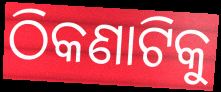
ଠିକଣାଟିକୁ